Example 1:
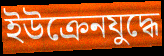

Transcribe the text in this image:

ইউক্রেনযুদ্ধে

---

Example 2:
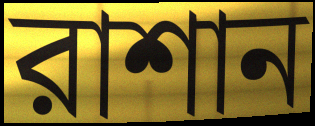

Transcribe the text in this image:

রাশান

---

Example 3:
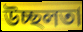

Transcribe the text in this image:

উচ্ছলতা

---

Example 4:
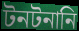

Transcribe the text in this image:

টনটনানি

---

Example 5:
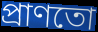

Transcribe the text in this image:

প্রাণতো